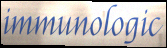
immunologic